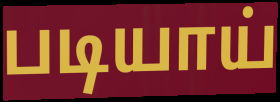
படியாய்